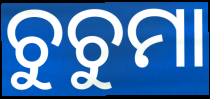
ଚୁଚୁମା